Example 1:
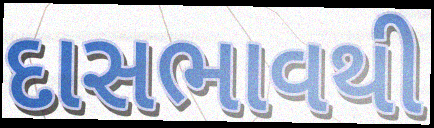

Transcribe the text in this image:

દાસભાવથી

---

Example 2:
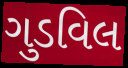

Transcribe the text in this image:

ગુડવિલ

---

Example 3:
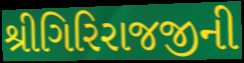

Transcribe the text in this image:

શ્રીગિરિરાજજીની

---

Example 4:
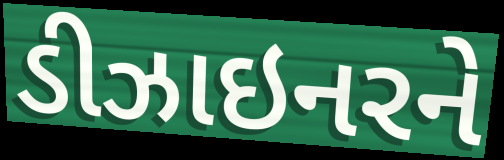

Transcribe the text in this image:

ડીઝાઇનરને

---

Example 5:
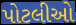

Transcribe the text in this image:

પોટલીઓ